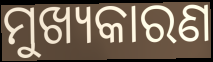
ମୁଖ୍ୟକାରଣ